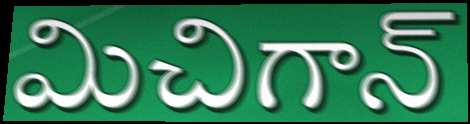
మిచిగాన్